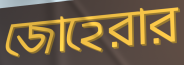
জোহেরার